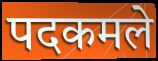
पदकमले